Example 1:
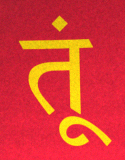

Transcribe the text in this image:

तूं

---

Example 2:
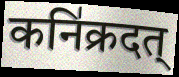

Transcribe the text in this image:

कनि॑क्रदत्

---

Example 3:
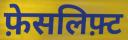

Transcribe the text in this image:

फ़ेसलिफ़्ट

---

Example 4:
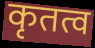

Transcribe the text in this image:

कृतत्व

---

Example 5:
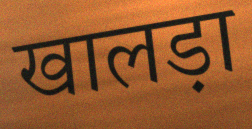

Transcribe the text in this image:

खालड़ा